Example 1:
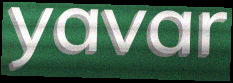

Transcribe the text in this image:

yavar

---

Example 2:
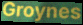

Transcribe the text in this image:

Groynes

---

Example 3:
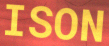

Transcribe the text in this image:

ISON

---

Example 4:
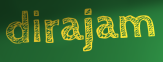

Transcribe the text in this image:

dirajam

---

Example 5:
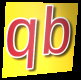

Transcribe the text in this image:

qb